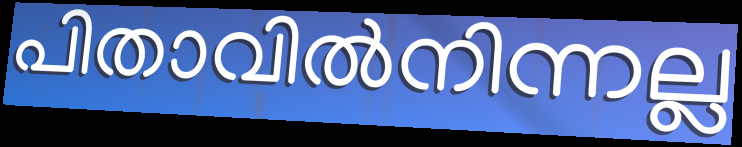
പിതാവിൽനിന്നല്ല